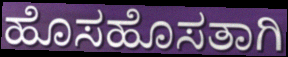
ಹೊಸಹೊಸತಾಗಿ